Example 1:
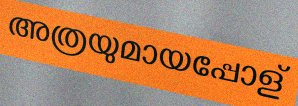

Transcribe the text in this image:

അത്രയുമായപ്പോള്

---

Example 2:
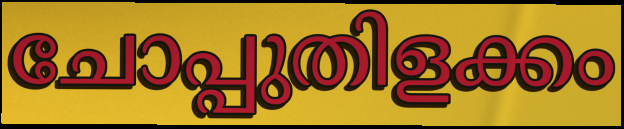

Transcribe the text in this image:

ചോപ്പുതിളക്കം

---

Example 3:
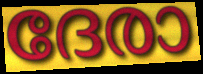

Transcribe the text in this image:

ദേരാ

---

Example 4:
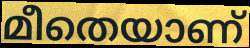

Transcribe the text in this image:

മീതെയാണ്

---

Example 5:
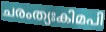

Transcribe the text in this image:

ചരംത്യഃകിമപി